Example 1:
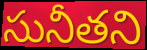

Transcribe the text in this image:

సునీతని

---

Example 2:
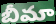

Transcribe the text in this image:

బీమా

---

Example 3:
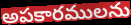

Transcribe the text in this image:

అపకారములను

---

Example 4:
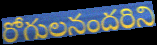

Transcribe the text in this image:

రోగులనందరిని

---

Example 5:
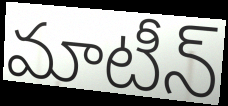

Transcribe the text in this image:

మాటీన్